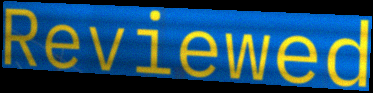
Reviewed